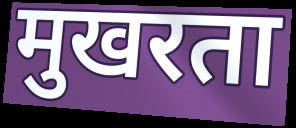
मुखरता